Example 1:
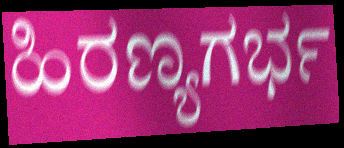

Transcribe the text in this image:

ಹಿರಣ್ಯಗರ್ಭ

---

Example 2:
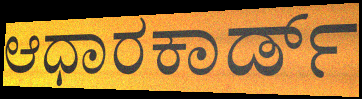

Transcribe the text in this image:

ಆಧಾರಕಾರ್ಡ್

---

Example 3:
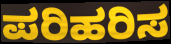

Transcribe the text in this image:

ಪರಿಹರಿಸ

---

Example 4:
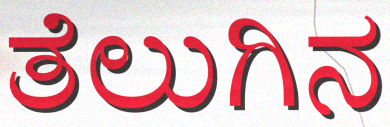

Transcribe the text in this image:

ತೆಲುಗಿನ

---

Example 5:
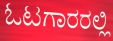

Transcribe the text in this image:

ಓಟಗಾರರಲ್ಲಿ